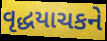
વૃદ્ધયાચકને